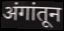
अंगांतून